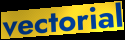
vectorial